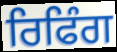
ਰਿਫਿੰਗ